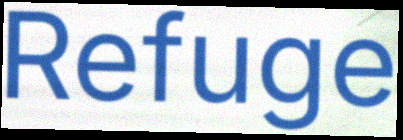
Refuge